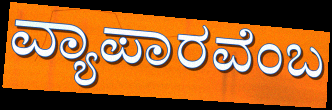
ವ್ಯಾಪಾರವೆಂಬ